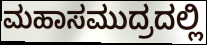
ಮಹಾಸಮುದ್ರದಲ್ಲಿ